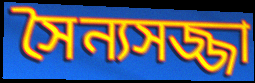
সৈন্যসজ্জা